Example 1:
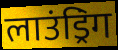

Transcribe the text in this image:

लाउंड्रिंग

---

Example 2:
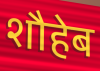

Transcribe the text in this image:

शौहेब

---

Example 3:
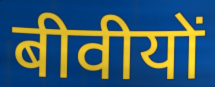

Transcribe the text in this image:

बीवीयों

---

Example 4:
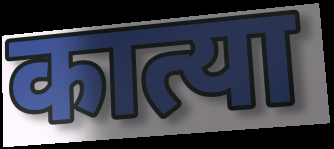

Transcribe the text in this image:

कात्या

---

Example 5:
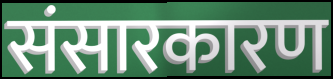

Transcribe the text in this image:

संसारकारण